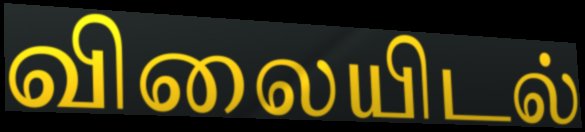
விலையிடல்